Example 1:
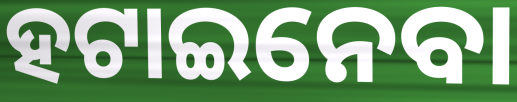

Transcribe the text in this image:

ହଟାଇନେବା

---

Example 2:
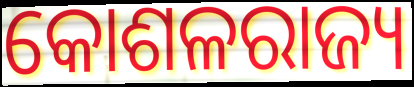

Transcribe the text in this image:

କୋଶଳରାଜ୍ୟ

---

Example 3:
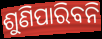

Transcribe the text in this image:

ଶୁଣିପାରିବନି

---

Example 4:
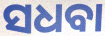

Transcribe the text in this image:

ସଧବା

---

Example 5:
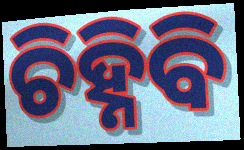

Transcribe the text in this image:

ଚିହ୍ନିବି